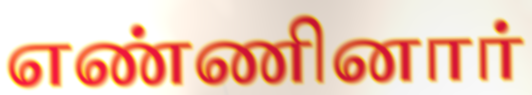
எண்ணினார்